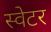
स्वेटर